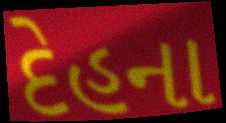
દેહના